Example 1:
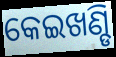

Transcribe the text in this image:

କେଇଖଣ୍ଡି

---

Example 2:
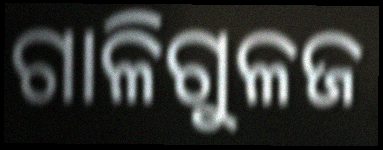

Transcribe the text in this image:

ଗାଳିଗୁଳଜ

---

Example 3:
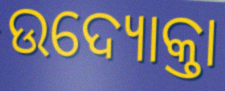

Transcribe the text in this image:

ଉଦ୍ୟୋକ୍ତା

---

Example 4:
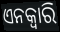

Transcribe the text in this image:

ଏନକ୍ଵାରି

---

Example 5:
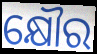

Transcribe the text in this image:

କ୍ଷୌର